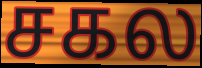
சகல